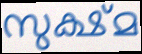
സുക്ഷ്മ